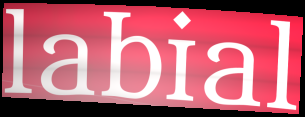
labial